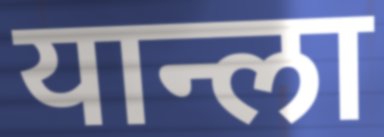
यान्ला